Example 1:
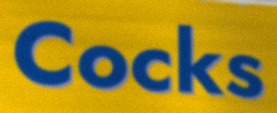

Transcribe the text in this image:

Cocks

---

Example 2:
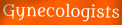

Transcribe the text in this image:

Gynecologists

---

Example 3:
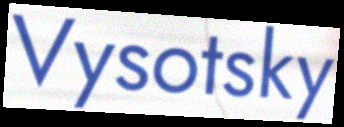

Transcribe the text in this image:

Vysotsky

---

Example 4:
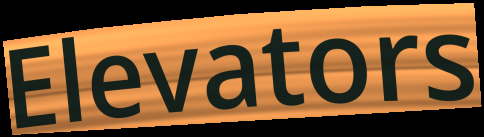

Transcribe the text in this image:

Elevators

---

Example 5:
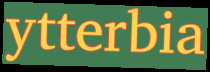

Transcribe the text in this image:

ytterbia